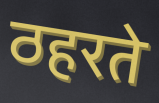
ठहरते